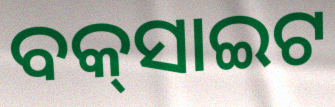
ବକ୍‌ସାଇଟ